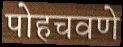
पोहचवणे